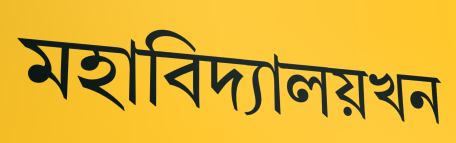
মহাবিদ্যালয়খন